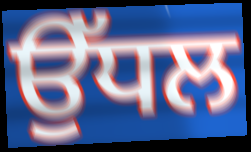
ਉੱਧਲ